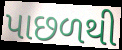
પાછળથી